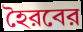
হৈরবের